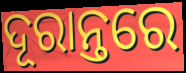
ଦୂରାନ୍ତରେ